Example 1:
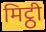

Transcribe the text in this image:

मिट्ठी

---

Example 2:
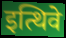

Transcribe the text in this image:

इत्थिवे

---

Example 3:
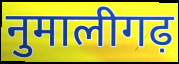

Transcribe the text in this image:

नुमालीगढ़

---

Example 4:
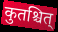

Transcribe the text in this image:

कुतश्चित्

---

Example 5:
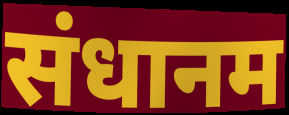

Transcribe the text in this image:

संधानम